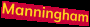
Manningham